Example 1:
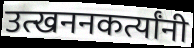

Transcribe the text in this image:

उत्खननकर्त्यांनी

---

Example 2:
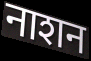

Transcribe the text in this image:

नाशन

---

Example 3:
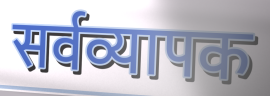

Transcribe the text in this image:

सर्वव्यापक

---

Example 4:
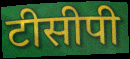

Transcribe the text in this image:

टीसीपी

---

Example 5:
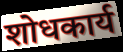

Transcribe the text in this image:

शोधकार्य